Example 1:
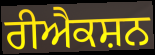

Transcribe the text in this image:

ਰੀਐਕਸ਼ਨ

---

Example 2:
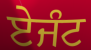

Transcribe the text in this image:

ਏਜੰਟ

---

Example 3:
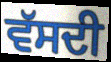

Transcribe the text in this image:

ਵੱਸਦੀ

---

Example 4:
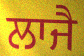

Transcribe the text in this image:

ਲਾਜੈ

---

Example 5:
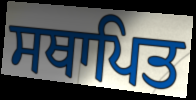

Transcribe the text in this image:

ਸਥਾਪਿਤ